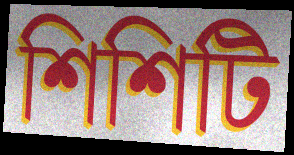
শিশিটি